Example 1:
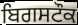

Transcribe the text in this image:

ਬਿਗਸਟੌਕ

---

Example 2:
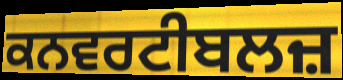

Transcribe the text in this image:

ਕਨਵਰਟੀਬਲਜ਼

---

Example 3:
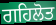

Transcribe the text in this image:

ਗਹਿਲੋਤ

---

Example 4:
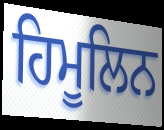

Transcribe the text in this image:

ਹਿਮੂਲਿਨ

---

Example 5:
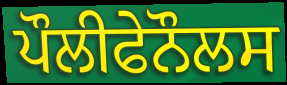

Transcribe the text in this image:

ਪੌਲੀਫੇਨੌਲਸ